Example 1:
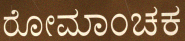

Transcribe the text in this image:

ರೋಮಾಂಚಕ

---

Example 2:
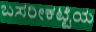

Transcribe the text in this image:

ಬಸರೀಕಟ್ಟೆಯ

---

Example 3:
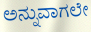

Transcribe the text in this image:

ಅನ್ನುವಾಗಲೇ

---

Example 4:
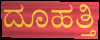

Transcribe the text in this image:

ದೂಹತ್ತಿ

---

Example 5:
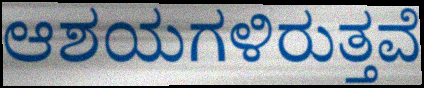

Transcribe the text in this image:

ಆಶಯಗಳಿರುತ್ತವೆ